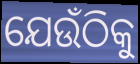
ଯେଉଁଠିକୁ